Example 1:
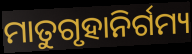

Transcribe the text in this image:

ମାତୁଗୃହାନିର୍ଗମ୍ୟ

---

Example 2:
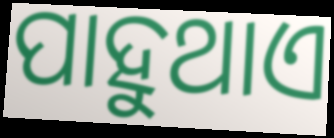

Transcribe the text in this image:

ପାହୁଥାଏ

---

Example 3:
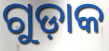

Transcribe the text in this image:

ଗୁଡ଼ାକ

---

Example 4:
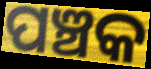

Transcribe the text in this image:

ପଞ୍ଚକ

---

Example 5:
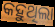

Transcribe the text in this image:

କହୁଥିଲା